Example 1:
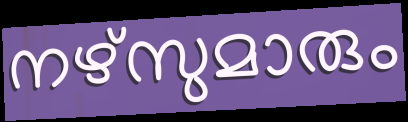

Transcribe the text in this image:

നഴ്സുമാരും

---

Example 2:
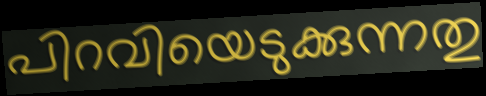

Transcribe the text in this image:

പിറവിയെടുക്കുന്നതു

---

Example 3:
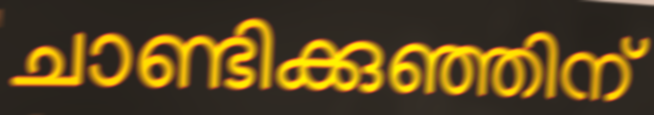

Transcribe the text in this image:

ചാണ്ടിക്കുഞ്ഞിന്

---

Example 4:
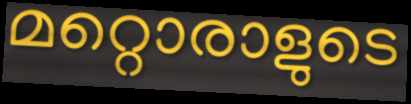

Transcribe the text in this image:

മറ്റൊരാളുടെ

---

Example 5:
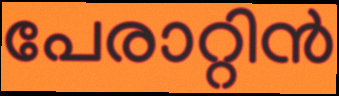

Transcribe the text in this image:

പേരാറ്റിൻ